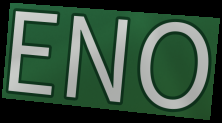
ENO